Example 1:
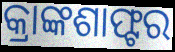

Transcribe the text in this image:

କ୍ରାଙ୍କଶାଫ୍ଟର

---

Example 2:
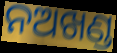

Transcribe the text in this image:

ନଅଖଣ୍ଡ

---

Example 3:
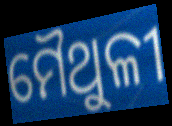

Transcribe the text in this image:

ମୈଥୁଳୀ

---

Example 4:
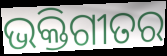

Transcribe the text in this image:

ଭକ୍ତିଗୀତର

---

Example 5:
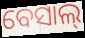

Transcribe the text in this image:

ବେସାଲ୍